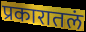
प्रकारातलं